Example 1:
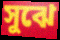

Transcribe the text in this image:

সুঝে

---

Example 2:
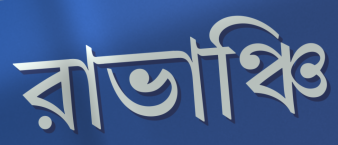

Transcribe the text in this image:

রাভাঞ্চি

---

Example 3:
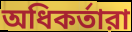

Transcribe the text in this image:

অধিকর্তারা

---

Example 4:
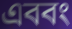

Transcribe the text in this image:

এববং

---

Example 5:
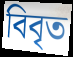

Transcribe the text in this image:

বিবৃত